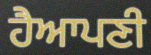
ਹੈਆਪਣੀ